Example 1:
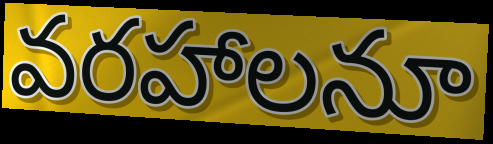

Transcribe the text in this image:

వరహాలనూ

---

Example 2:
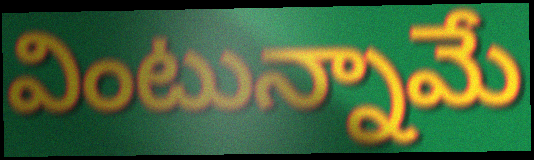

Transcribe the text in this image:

వింటున్నామే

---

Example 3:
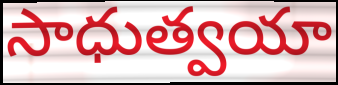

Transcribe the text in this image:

సాధుత్వయా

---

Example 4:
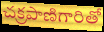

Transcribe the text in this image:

చక్రపాణిగారితో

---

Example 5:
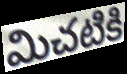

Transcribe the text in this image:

మిచటికి